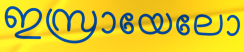
ഇസ്രായേലോ